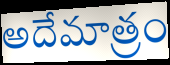
అదేమాత్రం